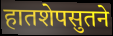
हातशेपसुतने